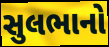
સુલભાનો